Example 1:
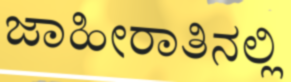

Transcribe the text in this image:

ಜಾಹೀರಾತಿನಲ್ಲಿ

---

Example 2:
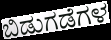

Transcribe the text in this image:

ಬಿಡುಗಡೆಗಳ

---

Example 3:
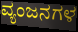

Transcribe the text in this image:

ವ್ಯಂಜನಗಳ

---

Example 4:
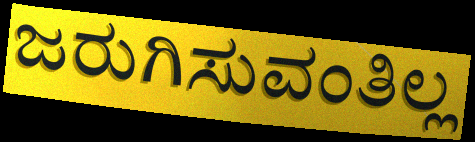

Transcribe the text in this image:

ಜರುಗಿಸುವಂತಿಲ್ಲ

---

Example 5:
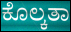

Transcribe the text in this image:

ಕೊಲ್ಕತಾ